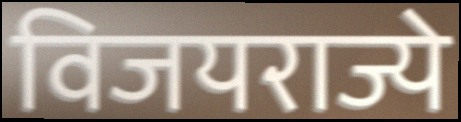
विजयराज्ये